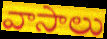
వాసాలు